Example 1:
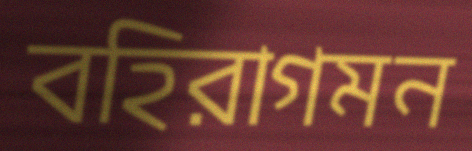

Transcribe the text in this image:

বহিরাগমন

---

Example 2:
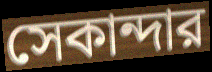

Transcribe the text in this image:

সেকান্দার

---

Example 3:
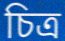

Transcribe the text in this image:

চিত্র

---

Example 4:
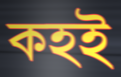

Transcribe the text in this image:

কহই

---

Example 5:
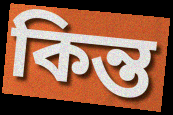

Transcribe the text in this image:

কিন্ত